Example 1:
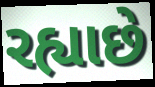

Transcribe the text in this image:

રહ્યાછે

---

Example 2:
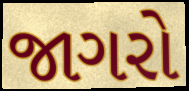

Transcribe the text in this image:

જાગરો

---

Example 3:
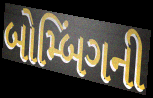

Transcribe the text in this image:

બોમ્બિંગની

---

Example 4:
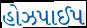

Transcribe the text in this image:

હોઝપાઈપ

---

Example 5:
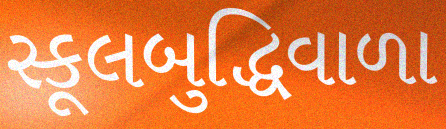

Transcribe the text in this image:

સ્કૂલબુદ્ધિવાળા